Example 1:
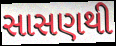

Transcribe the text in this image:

સાસણથી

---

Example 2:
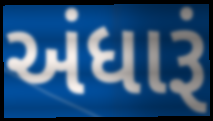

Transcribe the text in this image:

અંધારૂં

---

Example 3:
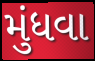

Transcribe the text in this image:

મુંધવા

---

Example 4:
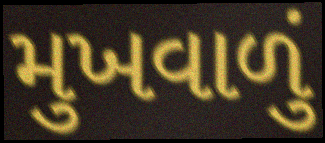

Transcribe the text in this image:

મુખવાળું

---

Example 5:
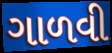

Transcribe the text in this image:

ગાળવી